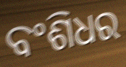
ବଂଶିଧର